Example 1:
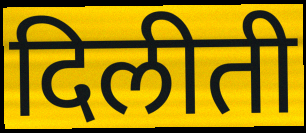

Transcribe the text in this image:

दिलीती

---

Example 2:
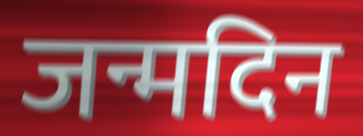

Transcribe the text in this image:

जन्मदिन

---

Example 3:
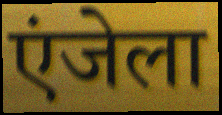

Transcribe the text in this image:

एंजेला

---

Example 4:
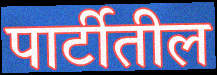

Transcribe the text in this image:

पार्टीतील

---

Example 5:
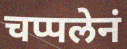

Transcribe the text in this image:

चप्पलेनं